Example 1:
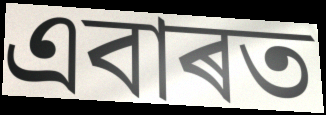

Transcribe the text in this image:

এবাৰত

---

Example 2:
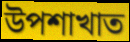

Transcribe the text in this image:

উপশাখাত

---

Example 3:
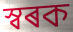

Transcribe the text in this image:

স্বৰক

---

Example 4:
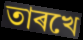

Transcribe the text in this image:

তাৰখে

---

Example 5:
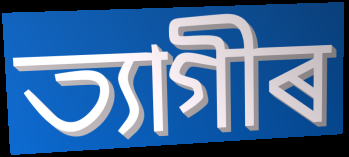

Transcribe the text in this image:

ত্যাগীৰ